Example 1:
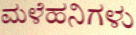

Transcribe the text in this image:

ಮಳೆಹನಿಗಳು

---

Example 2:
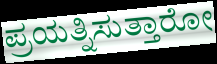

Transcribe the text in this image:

ಪ್ರಯತ್ನಿಸುತ್ತಾರೋ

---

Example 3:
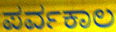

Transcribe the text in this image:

ಪರ್ವಕಾಲ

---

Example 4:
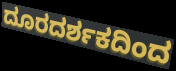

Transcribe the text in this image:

ದೂರದರ್ಶಕದಿಂದ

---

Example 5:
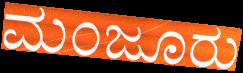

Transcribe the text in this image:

ಮಂಜೂರು